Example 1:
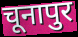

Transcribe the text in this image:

चूनापुर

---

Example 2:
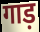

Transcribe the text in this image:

गाड़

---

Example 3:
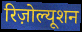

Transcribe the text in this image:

रिज़ोल्यूशन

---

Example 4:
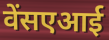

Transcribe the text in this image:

वेंसएआई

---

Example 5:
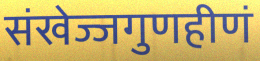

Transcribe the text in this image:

संखेज्जगुणहीणं